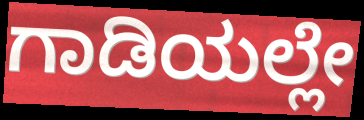
ಗಾಡಿಯಲ್ಲೇ